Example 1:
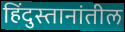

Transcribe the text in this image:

हिंदुस्तानांतील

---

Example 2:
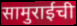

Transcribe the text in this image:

सामुराईची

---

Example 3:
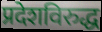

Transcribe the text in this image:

प्रदेशविरुद्ध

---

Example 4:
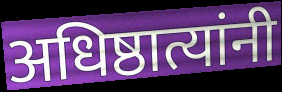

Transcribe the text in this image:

अधिष्ठात्यांनी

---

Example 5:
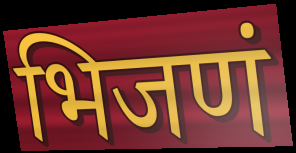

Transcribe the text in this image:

भिजणं